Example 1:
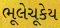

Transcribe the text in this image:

ભૂલેચૂકેય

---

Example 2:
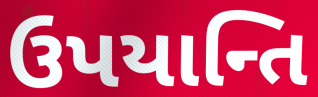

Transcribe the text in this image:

ઉપયાન્તિ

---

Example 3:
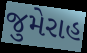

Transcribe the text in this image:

જુમેરાહ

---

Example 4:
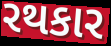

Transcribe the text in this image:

રથકાર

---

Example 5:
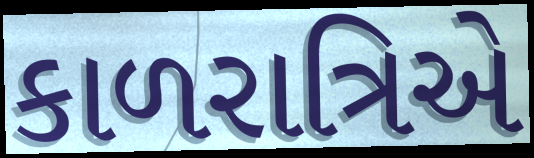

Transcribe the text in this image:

કાળરાત્રિએ